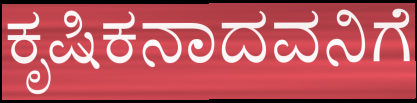
ಕೃಷಿಕನಾದವನಿಗೆ